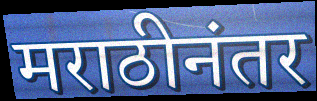
मराठीनंतर